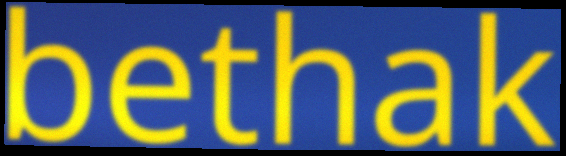
bethak